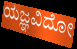
ಯಜ್ಞವಿದೋ